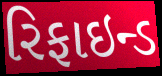
રિફાઇન્ડ